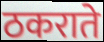
ठकराते